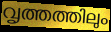
വൃത്തത്തിലും